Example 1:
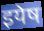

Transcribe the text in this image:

इयेष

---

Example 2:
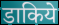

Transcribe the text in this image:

डाकिये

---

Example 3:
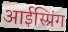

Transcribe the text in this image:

आईस्प्रिंग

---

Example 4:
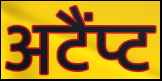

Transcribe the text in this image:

अटैंप्ट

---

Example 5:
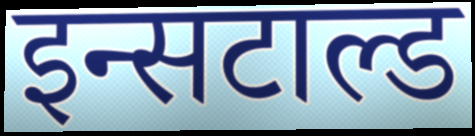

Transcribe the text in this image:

इन्सटाल्ड